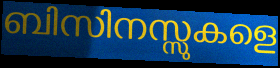
ബിസിനസ്സുകളെ